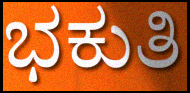
ಭಕುತಿ